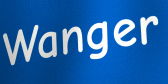
Wanger